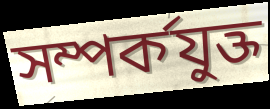
সম্পৰ্কযুক্ত